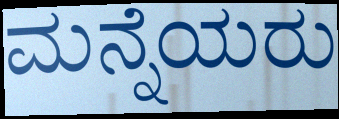
ಮನ್ನೆಯರು